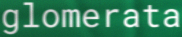
glomerata